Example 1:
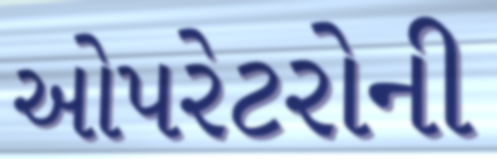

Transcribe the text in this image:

ઓપરેટરોની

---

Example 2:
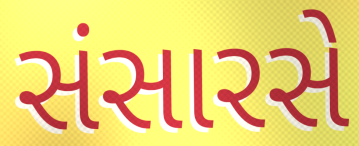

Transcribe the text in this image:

સંસારસે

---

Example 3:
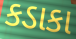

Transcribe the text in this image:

કડાકા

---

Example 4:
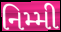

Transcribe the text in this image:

નિમ્મી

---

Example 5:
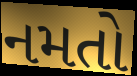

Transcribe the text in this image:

નમતો